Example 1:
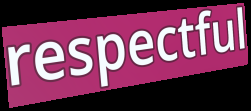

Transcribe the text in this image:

respectful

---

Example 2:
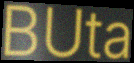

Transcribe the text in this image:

BUta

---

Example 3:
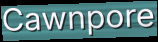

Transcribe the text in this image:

Cawnpore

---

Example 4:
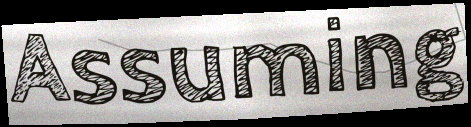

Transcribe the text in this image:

Assuming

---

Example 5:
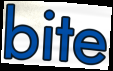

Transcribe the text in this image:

bite